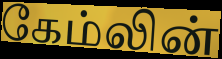
கேம்லின்